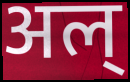
अल्